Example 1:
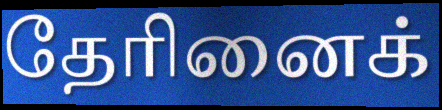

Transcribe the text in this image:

தேரினைக்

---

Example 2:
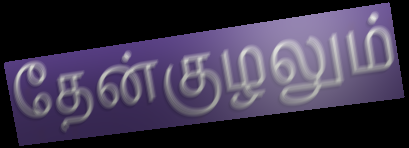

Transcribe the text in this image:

தேன்குழலும்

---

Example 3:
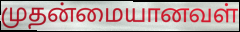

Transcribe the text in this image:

முதன்மையானவள்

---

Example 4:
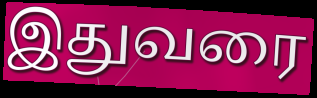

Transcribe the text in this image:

இதுவரை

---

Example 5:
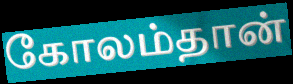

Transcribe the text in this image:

கோலம்தான்